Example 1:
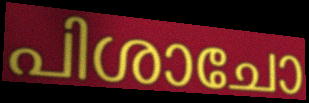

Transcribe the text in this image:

പിശാചോ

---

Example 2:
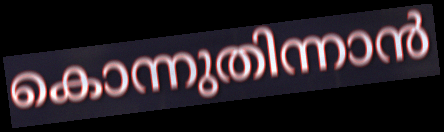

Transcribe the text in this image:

കൊന്നുതിന്നാൻ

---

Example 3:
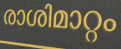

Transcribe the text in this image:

രാശിമാറ്റം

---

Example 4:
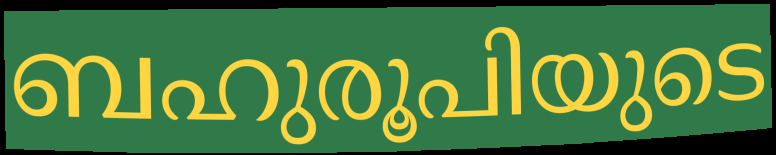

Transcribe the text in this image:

ബഹുരൂപിയുടെ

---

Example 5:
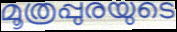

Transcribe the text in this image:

മൂത്രപ്പുരയുടെ